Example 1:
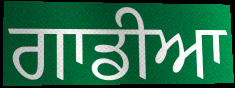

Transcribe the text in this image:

ਗਾਡੀਆ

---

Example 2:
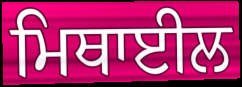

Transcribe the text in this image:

ਮਿਥਾਈਲ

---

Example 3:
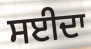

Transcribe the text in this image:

ਸਈਦਾ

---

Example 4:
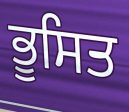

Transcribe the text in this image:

ਭੂਸਿਤ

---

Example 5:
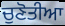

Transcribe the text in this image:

ਚੁਣੋਤੀਆ